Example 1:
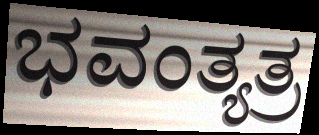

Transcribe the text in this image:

ಭವಂತ್ಯತ್ರ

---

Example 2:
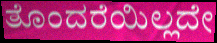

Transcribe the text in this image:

ತೊಂದರೆಯಿಲ್ಲದೇ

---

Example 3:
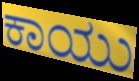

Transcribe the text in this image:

ಕಾಯು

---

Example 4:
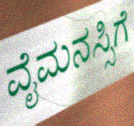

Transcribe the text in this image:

ವೈಮನಸ್ಸಿಗೆ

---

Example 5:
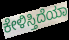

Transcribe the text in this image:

ಕೇಳಿಸ್ತಿದೆಯಾ